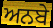
ਅਨਬੇ